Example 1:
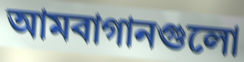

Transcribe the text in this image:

আমবাগানগুলো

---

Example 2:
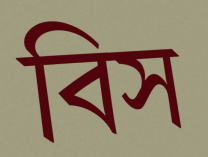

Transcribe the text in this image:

বিস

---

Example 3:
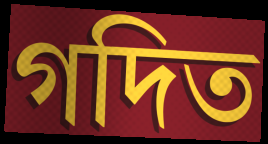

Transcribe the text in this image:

গদিত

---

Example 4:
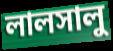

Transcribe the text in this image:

লালসালু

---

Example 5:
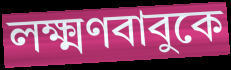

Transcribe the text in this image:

লক্ষ্মণবাবুকে